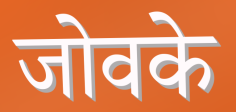
जोवके